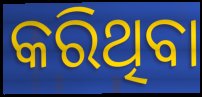
କରିଥିବା